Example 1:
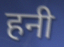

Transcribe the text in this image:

हनी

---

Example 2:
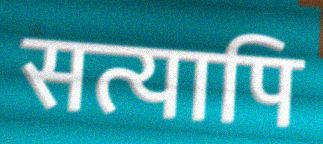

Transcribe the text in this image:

सत्यापि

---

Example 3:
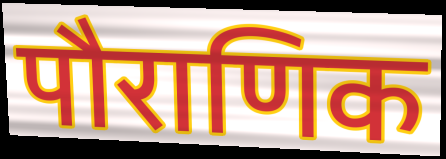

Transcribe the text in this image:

पौराणिक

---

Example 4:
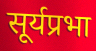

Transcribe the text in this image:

सूर्यप्रभा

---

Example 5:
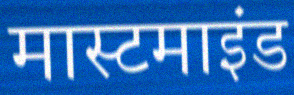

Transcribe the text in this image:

मास्टमाइंड